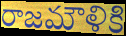
రాజమౌళికి